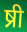
ष्री